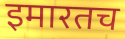
इमारतच